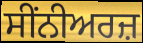
ਸੀਂਨੀਅਰਜ਼